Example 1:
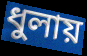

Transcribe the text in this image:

ধুলায়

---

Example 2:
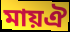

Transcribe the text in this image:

মায়ঐ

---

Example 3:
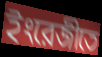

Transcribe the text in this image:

ইংরেজীতে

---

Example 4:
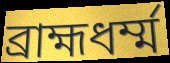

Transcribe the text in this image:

ব্রাহ্মধর্ম্ম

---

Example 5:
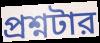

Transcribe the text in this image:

প্রশ্নটার